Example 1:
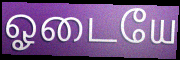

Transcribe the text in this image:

ஓடையே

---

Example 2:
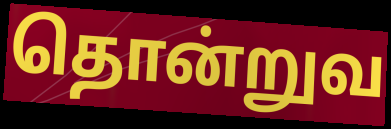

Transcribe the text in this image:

தொன்றுவ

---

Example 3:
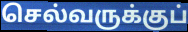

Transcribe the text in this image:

செல்வருக்குப்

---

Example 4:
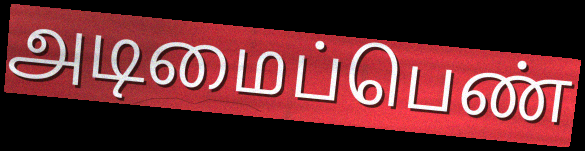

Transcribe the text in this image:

அடிமைப்பெண்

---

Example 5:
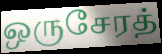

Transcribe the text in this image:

ஒருசேரத்